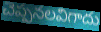
చెప్పనలవిగాదు